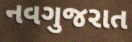
નવગુજરાત